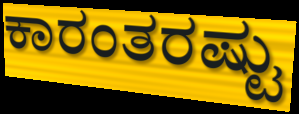
ಕಾರಂತರಷ್ಟು